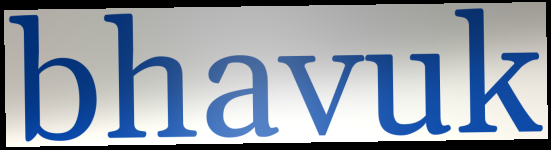
bhavuk